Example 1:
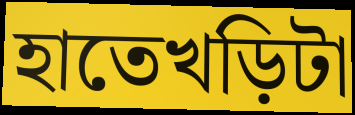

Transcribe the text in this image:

হাতেখড়িটা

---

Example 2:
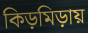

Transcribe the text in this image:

কিড়মিড়ায়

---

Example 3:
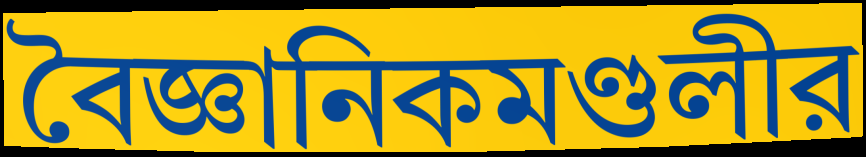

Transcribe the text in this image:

বৈজ্ঞানিকমণ্ডলীর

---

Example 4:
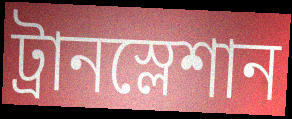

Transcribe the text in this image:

ট্রানস্লেশান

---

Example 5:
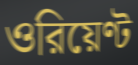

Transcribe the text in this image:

ওরিয়েণ্ট